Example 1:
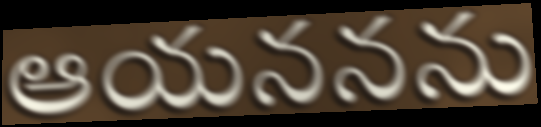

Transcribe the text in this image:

ఆయననను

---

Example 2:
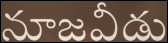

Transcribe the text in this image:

నూజవీడు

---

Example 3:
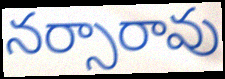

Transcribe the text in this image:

నర్సారావు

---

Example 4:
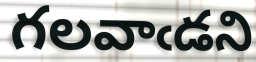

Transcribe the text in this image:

గలవాఁడని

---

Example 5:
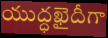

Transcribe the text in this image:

యుద్ధఖైదీగా